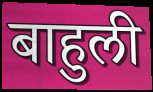
बाहुली